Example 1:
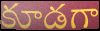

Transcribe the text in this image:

కూడగా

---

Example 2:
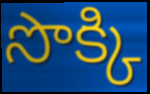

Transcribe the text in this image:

సొక్కి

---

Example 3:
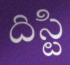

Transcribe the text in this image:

దిస్టి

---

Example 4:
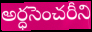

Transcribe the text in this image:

అర్ధసెంచరీని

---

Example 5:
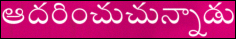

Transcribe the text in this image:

ఆదరించుచున్నాడు